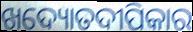
ଖଦ୍ୟୋତଦୀପିକାର